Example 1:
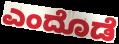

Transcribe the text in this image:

ಎಂದೊಡೆ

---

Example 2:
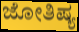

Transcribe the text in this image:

ಜೋತಿಷ್ಯ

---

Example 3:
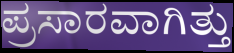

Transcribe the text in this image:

ಪ್ರಸಾರವಾಗಿತ್ತು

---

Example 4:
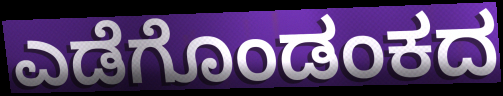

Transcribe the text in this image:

ಎಡೆಗೊಂಡಂಕದ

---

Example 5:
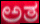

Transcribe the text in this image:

ಅತ